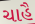
ચાહૈ